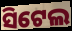
ସିଟେଲ